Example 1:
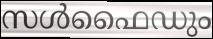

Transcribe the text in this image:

സൾഫൈഡും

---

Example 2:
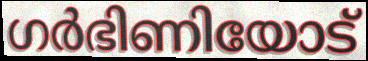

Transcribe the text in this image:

ഗർഭിണിയോട്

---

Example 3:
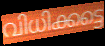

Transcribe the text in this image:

വിധിക്കട്ടെ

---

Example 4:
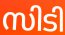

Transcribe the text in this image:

സിടി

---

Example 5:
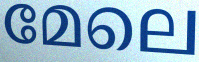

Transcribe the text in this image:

മേലെ